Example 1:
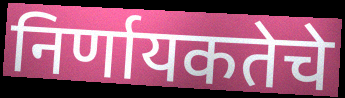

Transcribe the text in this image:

निर्णायकतेचे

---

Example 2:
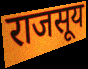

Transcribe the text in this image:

राजसूय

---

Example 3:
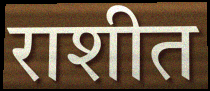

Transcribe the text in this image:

राशीत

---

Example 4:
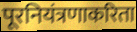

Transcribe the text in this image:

पूरनियंत्रणाकरिता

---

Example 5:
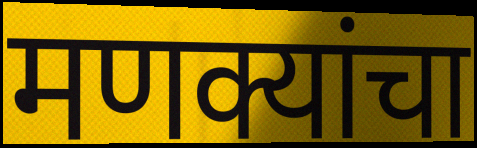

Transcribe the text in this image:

मणक्यांचा